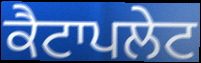
ਕੈਟਾਪਲੇਟ